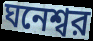
ঘনেশ্বর